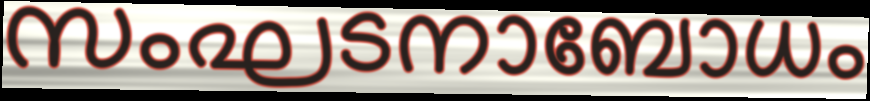
സംഘടനാബോധം